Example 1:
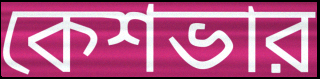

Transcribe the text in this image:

কেশভার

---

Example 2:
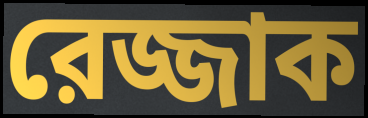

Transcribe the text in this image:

রেজ্জাক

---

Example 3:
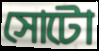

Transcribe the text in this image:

সোটো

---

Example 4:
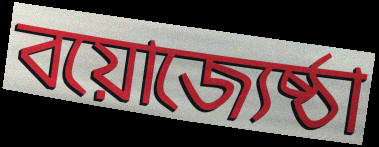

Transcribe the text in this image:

বয়োজ্যেষ্ঠা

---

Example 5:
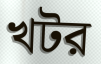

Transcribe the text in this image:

খটর